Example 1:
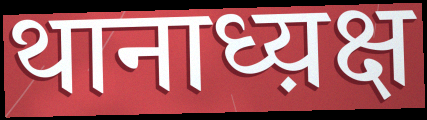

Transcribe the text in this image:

थानाध्य़क्ष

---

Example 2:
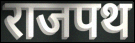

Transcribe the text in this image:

राजपथ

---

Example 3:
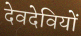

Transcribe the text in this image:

देवदेवियों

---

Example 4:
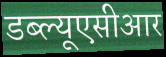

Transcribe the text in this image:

डब्ल्यूएसीआर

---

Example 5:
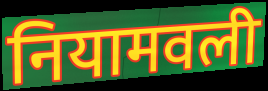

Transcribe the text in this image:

नियामवली